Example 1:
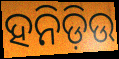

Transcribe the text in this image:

ହନିଡ଼ିଉ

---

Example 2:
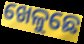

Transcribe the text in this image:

ଖେଳୁଛେ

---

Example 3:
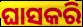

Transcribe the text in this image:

ଘାସକରି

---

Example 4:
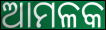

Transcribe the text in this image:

ଆମଳକ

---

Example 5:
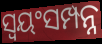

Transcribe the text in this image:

ସ୍ବୟଂସମ୍ପନ୍ନ